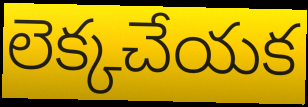
లెక్కచేయక